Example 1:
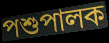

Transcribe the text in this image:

পশুপালক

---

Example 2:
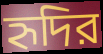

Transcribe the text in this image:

হৃদির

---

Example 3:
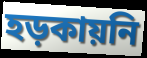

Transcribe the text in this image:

হড়কায়নি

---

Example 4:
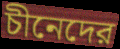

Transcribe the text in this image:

চীনেদের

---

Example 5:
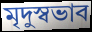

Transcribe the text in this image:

মৃদুস্বভাব